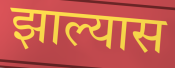
झाल्यास